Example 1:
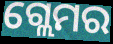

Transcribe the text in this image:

ଗ୍ଲେମର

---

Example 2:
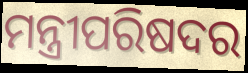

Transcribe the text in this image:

ମନ୍ତ୍ରୀପରିଷଦର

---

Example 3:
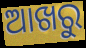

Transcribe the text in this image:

ଆଖରୁ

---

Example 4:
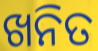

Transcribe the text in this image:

ଖନିତ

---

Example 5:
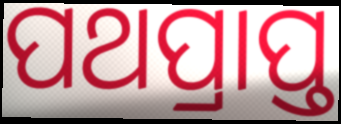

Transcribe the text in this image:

ପଥପ୍ରାପ୍ତ